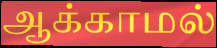
ஆக்காமல்